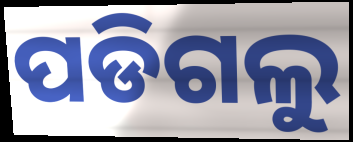
ପଡିଗଲୁ